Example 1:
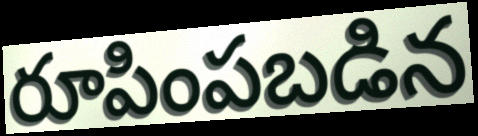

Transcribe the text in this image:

రూపింపబడిన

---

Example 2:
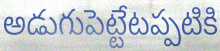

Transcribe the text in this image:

అడుగుపెట్టేటప్పటికి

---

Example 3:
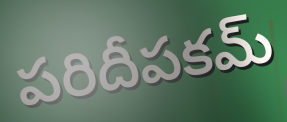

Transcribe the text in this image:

పరిదీపకమ్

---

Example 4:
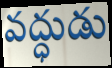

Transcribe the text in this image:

వద్ధుడు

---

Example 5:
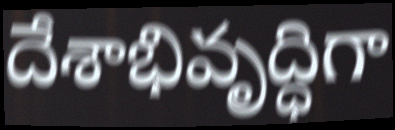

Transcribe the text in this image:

దేశాభివృద్ధిగా